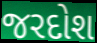
જરદોશ